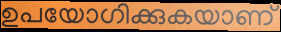
ഉപയോഗിക്കുകയാണ്